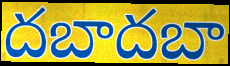
దబాదబా